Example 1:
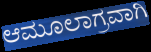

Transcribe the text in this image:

ಆಮೂಲಾಗ್ರವಾಗಿ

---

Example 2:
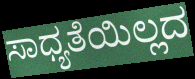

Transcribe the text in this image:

ಸಾಧ್ಯತೆಯಿಲ್ಲದ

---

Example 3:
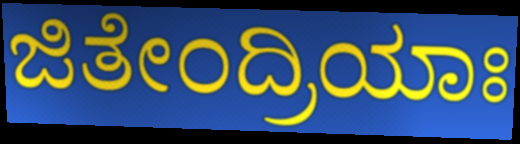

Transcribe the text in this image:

ಜಿತೇಂದ್ರಿಯಾಃ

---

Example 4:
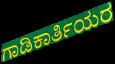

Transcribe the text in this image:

ಗಾಡಿಕಾರ್ತಿಯರ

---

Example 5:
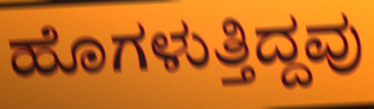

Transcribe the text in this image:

ಹೊಗಳುತ್ತಿದ್ದವು